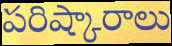
పరిష్కారాలు